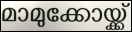
മാമുക്കോയ്ക്ക്